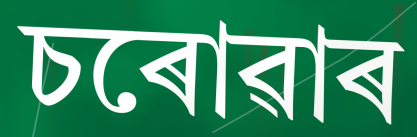
চৰোৱাৰ